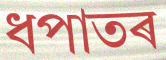
ধপাতৰ